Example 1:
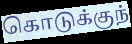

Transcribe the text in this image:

கொடுக்குந்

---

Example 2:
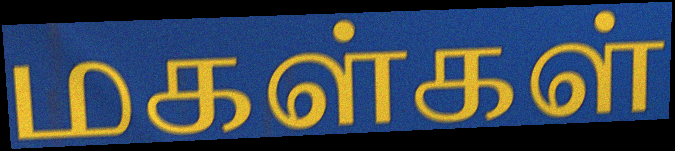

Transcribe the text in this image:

மகள்கள்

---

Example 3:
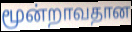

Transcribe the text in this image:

மூன்றாவதான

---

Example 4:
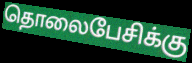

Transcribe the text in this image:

தொலைபேசிக்கு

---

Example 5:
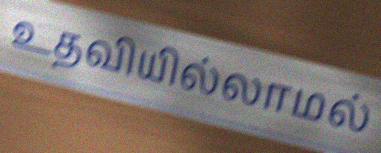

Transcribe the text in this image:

உதவியில்லாமல்